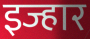
इज्हार